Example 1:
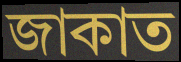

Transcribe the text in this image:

জাকাত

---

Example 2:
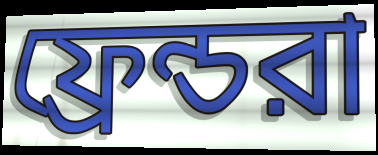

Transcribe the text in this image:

ফ্রেন্ডরা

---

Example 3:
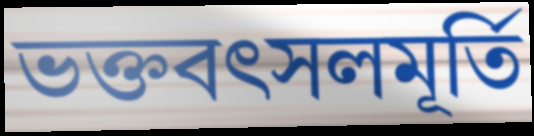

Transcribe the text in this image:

ভক্তবৎসলমূর্তি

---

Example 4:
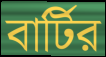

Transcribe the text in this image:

বার্টির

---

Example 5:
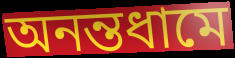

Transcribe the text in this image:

অনন্তধামে